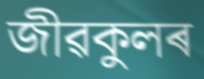
জীৱকুলৰ